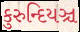
કુરુન્દિયઞ્ચ